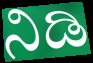
ನಿಡಿ